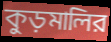
কুড়মালির